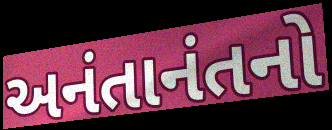
અનંતાનંતનો